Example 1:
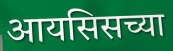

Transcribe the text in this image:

आयसिसच्या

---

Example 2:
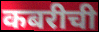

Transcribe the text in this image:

कबरीची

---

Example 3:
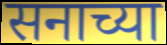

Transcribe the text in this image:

सनाच्या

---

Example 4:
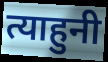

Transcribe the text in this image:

त्याहुनी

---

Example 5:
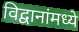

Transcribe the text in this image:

विद्वानांमध्ये